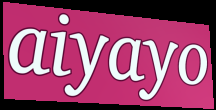
aiyayo